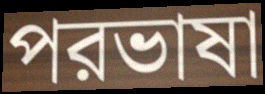
পরভাষা